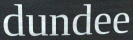
dundee